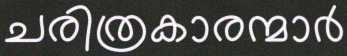
ചരിത്രകാരന്മാർ